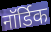
नॉर्डिक